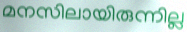
മനസിലായിരുന്നില്ല